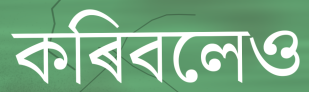
কৰিবলেও